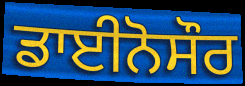
ਡਾਈਨੋਸੌਰ